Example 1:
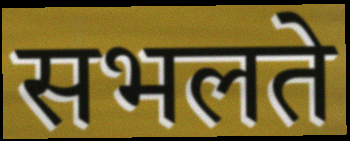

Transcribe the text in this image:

सभलते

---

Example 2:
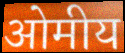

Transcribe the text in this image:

ओमीय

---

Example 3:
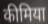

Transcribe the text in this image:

कीमिया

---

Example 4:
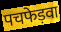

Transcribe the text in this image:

पचफेड़वा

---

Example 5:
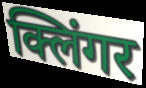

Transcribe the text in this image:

क्लिंगर